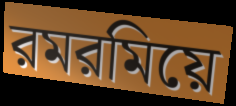
রমরমিয়ে